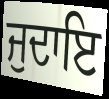
ਜੁਦਾਇ